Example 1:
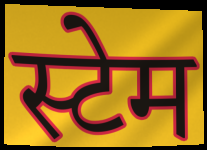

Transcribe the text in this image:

स्टेम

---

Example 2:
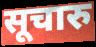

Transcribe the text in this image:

सूचारु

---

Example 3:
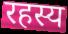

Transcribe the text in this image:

रहस्य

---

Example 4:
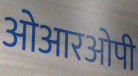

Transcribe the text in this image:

ओआरओपी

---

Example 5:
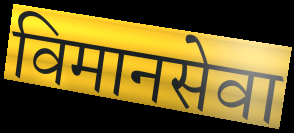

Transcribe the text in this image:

विमानसेवा